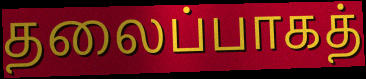
தலைப்பாகத்